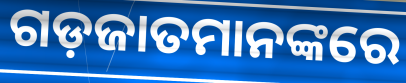
ଗଡ଼ଜାତମାନଙ୍କରେ